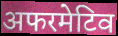
अफरमेटिव